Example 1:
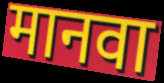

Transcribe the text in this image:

मानवा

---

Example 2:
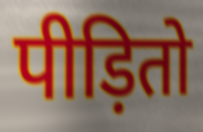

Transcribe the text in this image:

पीड़ितो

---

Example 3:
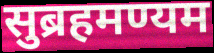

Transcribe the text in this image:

सुब्रहमण्यम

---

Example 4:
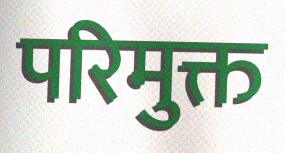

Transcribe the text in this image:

परिमुक्त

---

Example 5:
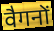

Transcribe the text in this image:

वैगनों